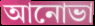
আনোভা